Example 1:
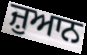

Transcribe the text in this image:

ਜ਼ੁਆਨ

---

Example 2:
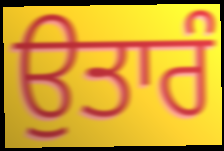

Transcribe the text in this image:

ਉਤਾਰੰ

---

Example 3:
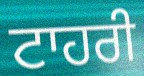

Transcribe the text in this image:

ਟਾਹਰੀ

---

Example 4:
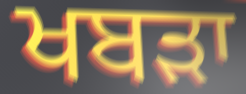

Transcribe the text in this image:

ਖਬੜਾ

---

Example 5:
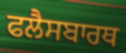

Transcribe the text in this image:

ਫਲੈਸਬਾਰਥ